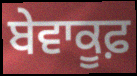
ਬੇਵਾਕੂਫ਼